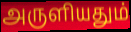
அருளியதும்